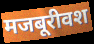
मजबूरीवश